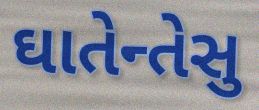
ઘાતેન્તેસુ